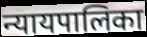
न्यायपालिका